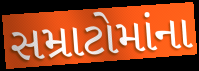
સમ્રાટોમાંના